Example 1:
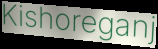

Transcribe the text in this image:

Kishoreganj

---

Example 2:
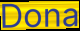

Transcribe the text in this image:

Dona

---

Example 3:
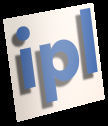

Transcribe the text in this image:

ipl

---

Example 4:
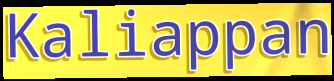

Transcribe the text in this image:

Kaliappan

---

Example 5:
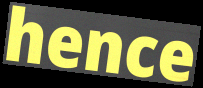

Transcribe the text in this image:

hence